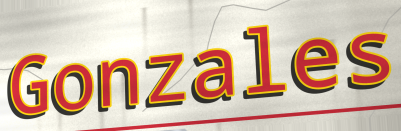
Gonzales